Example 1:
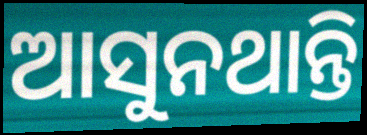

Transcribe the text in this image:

ଆସୁନଥାନ୍ତି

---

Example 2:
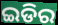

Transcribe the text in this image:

ଇଡିର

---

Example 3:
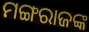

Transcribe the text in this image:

ମଙ୍ଗରାଜଙ୍କ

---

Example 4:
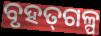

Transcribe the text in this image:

ବୃହତ୍‌ଗଳ୍ପ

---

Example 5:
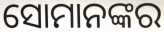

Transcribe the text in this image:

ସୋମାନଙ୍କର